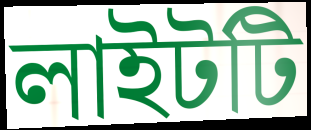
লাইটটি